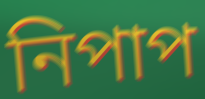
নিপাপ